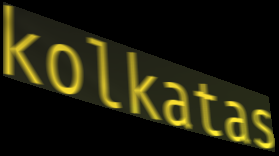
kolkatas